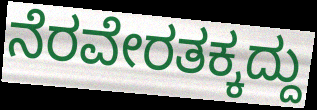
ನೆರವೇರತಕ್ಕದ್ದು